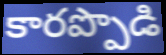
కారప్పొడి